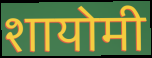
शायोमी